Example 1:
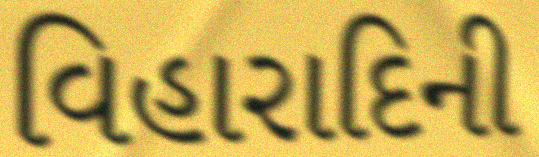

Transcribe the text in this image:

વિહારાદિની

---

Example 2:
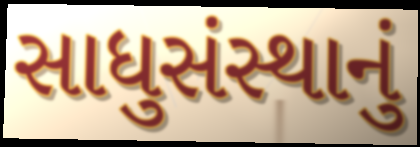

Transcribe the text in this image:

સાધુસંસ્થાનું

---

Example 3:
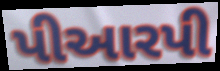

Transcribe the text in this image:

પીઆરપી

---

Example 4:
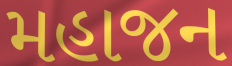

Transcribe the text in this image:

મહાજન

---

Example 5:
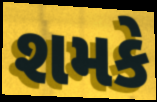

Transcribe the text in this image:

શમકે